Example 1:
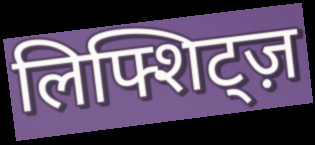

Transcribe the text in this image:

लिफ्शिट्ज़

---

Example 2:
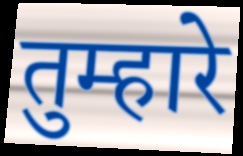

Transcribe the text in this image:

तुम्हारे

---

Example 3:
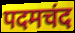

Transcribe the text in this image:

पदमचंद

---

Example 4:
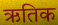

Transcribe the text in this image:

ऋतिक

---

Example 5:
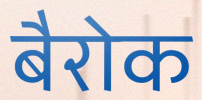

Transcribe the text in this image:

बैरोक